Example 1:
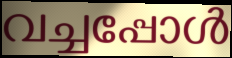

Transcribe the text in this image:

വച്ചപ്പോൾ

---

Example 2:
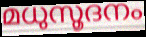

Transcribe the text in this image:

മധുസൂദനം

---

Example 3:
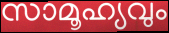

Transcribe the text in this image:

സാമൂഹ്യവും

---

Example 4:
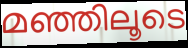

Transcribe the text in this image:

മഞ്ഞിലൂടെ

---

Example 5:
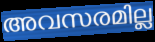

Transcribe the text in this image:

അവസരമില്ല